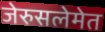
जेरुसलेमेत